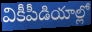
వికీపీడియాల్లో